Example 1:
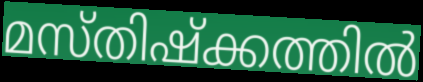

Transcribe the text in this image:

മസ്തിഷ്ക്കത്തിൽ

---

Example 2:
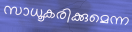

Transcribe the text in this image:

സാധൂകരിക്കുമെന്ന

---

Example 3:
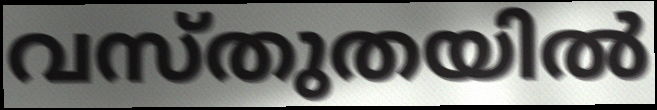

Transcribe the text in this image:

വസ്തുതയിൽ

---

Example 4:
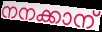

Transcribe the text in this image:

നനക്കാന്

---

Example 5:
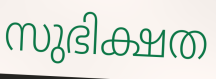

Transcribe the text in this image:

സുഭിക്ഷത